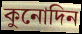
কুনোদিন